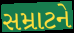
સમ્રાટને